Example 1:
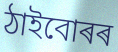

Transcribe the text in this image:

ঠাইবোৰৰ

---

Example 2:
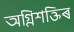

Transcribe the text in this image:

অগ্নিশক্তিৰ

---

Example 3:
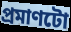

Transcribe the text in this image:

প্ৰমাণটো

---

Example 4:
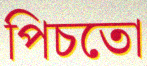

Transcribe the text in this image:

পিচতো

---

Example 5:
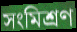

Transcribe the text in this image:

সংমিশ্ৰণ